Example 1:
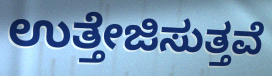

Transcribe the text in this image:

ಉತ್ತೇಜಿಸುತ್ತವೆ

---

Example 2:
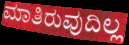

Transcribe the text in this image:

ಮಾತಿರುವುದಿಲ್ಲ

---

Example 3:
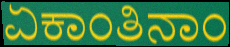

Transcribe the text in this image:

ಏಕಾಂತಿನಾಂ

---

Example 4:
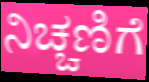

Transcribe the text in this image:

ನಿಚ್ಚಣಿಗೆ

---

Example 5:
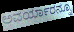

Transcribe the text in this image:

ಅವರ್ಯಾರನ್ನೂ